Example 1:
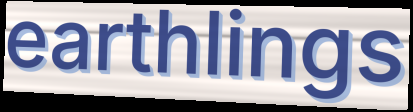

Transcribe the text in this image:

earthlings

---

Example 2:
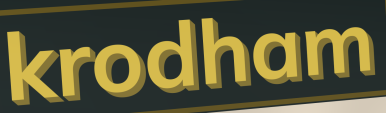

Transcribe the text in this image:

krodham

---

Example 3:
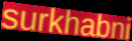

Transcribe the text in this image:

surkhabni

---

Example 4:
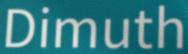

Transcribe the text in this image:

Dimuth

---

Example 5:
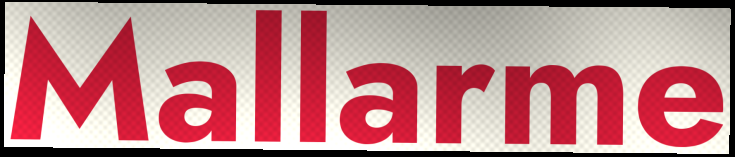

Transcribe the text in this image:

Mallarme